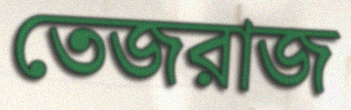
তেজরাজ